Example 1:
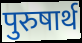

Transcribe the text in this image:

पुरुषार्थ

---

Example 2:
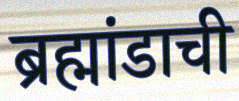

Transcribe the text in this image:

ब्रह्मांडाची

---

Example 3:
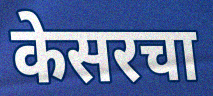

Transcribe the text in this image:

केसरचा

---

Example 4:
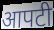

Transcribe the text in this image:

आपटी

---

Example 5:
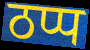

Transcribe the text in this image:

ठप्प